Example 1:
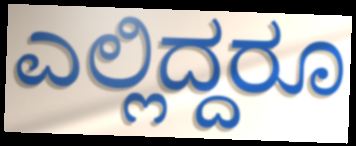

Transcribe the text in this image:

ಎಲ್ಲಿದ್ದರೂ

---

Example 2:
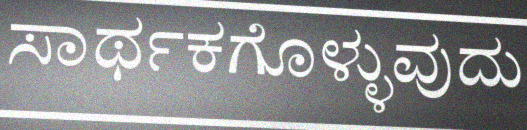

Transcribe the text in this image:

ಸಾರ್ಥಕಗೊಳ್ಳುವುದು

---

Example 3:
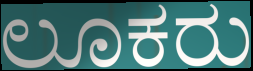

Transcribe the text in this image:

ಲೂಕರು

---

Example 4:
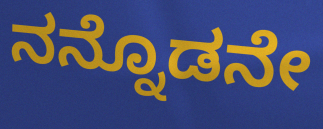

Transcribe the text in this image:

ನನ್ನೊಡನೇ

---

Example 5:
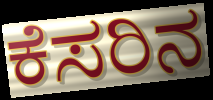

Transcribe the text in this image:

ಕೆಸರಿನ